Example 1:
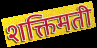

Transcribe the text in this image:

शक्तिमती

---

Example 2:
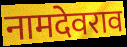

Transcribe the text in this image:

नामदेवराव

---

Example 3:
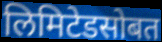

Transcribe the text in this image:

लिमिटेडसोबत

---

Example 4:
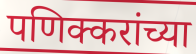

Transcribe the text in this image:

पणिक्करांच्या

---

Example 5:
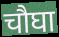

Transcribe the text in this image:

चौघा